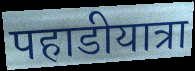
पहाडीयात्रा